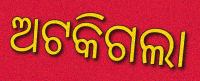
ଅଟକିଗଲା